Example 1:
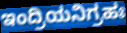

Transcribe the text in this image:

ಇಂದ್ರಿಯನಿಗ್ರಹಃ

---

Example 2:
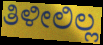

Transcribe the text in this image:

ತಿಳೀಲಿಲ್ಲ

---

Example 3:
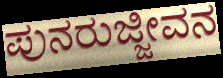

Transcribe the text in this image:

ಪುನರುಜ್ಜೀವನ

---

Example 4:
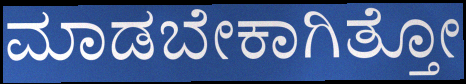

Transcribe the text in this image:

ಮಾಡಬೇಕಾಗಿತ್ತೋ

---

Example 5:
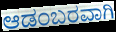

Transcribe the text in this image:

ಆಡಂಬರವಾಗಿ